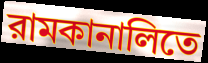
রামকানালিতে